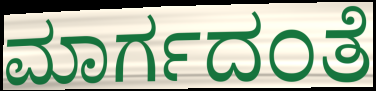
ಮಾರ್ಗದಂತೆ